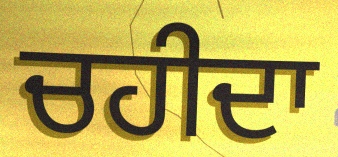
ਚਹੀਦਾ